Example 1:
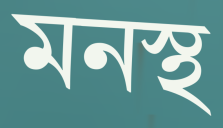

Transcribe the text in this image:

মনস্থ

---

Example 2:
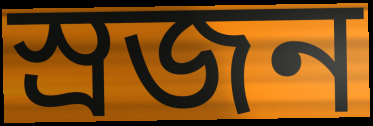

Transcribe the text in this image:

স্ৰজন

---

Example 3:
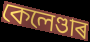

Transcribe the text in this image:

কেলেণ্ডাৰ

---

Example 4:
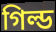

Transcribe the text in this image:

গিল্ড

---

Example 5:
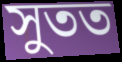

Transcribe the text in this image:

সুতত